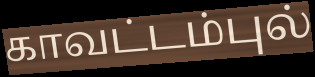
காவட்டம்புல்